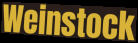
Weinstock